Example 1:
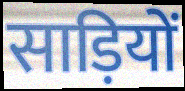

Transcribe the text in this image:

साड़ियों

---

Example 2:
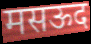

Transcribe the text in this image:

मसऊद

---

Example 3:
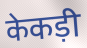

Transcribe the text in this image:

केकड़ी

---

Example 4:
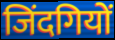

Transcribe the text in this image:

जिंदगियों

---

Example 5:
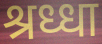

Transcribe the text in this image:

श्रध्धा